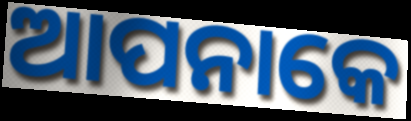
ଆପନାକେ